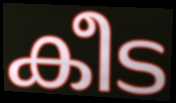
കീട